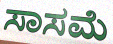
ಸಾಸಮೆ